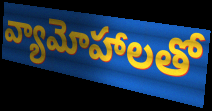
వ్యామోహాలతో